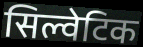
सिल्वेटिक